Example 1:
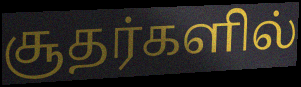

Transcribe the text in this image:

சூதர்களில்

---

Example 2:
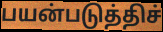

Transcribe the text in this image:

பயன்படுத்திச்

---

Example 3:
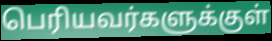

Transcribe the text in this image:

பெரியவர்களுக்குள்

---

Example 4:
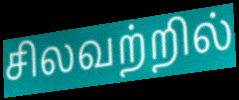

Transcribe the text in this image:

சிலவற்றில்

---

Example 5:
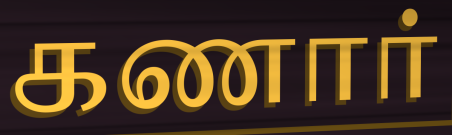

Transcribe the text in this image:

கணார்